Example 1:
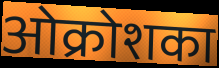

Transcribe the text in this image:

ओक्रोशका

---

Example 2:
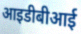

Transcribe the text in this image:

आइडीबीआई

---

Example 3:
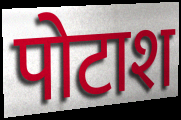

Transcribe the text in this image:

पोटाश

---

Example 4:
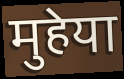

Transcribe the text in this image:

मुहेया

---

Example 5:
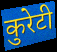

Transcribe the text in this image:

कुरेटी